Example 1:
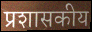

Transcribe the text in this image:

प्रशासकीय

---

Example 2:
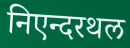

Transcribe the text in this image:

निएन्दरथल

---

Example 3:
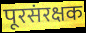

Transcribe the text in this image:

पूरसंरक्षक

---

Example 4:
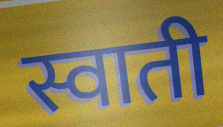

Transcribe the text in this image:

स्वाती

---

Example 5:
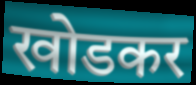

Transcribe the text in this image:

खोडकर